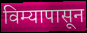
विम्यापासून